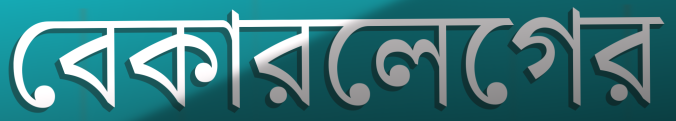
বেকারলেগের